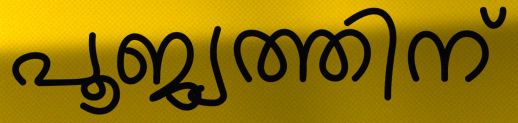
പൂജ്യത്തിന്